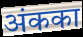
अंकका